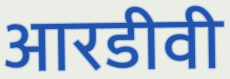
आरडीवी